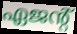
ഏജന്റ്